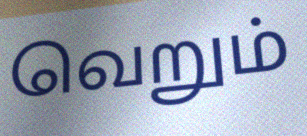
வெறும்